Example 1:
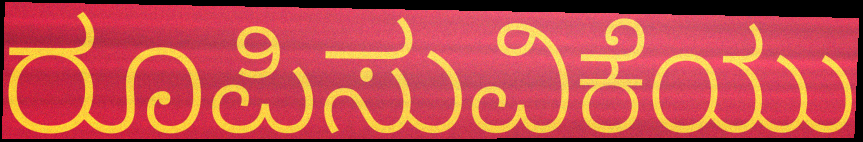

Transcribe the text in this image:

ರೂಪಿಸುವಿಕೆಯು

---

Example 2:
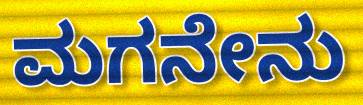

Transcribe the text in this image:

ಮಗನೇನು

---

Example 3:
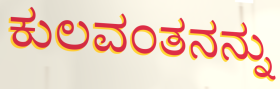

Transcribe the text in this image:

ಕುಲವಂತನನ್ನು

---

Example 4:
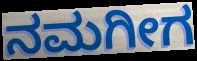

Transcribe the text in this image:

ನಮಗೀಗ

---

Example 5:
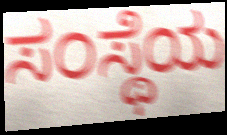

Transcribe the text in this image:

ಸಂಸ್ಥೆಯ